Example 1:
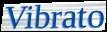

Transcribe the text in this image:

Vibrato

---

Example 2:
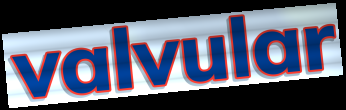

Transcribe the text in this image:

valvular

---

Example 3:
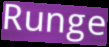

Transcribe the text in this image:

Runge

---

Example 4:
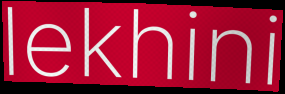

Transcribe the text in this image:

lekhini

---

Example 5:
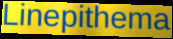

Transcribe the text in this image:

Linepithema